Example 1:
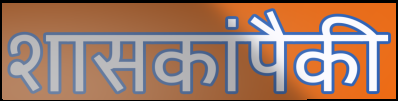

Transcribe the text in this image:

शासकांपैकी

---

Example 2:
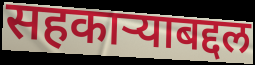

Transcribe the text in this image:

सहकाऱ्याबद्दल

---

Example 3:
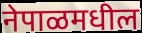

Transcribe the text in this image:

नेपाळमधील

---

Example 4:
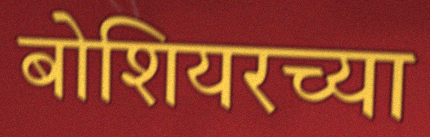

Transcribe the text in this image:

बोशियरच्या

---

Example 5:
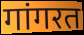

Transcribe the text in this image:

गांगरत